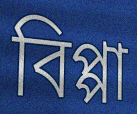
বিপ্পা